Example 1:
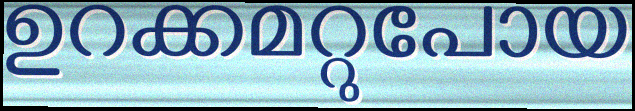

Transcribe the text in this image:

ഉറക്കമറ്റുപോയ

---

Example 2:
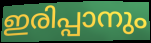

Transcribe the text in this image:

ഇരിപ്പാനും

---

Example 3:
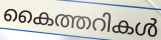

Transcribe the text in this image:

കൈത്തറികൾ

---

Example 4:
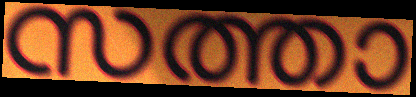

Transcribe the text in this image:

സത്താ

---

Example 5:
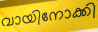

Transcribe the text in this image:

വായിനോക്കി